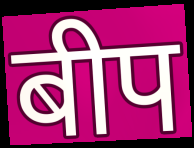
बीप